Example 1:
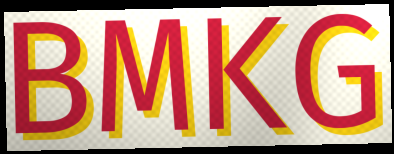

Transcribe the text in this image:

BMKG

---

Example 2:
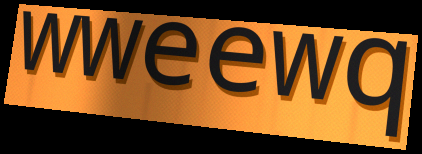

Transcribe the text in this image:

wweewq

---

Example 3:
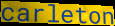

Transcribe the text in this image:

carleton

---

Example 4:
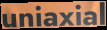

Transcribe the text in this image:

uniaxial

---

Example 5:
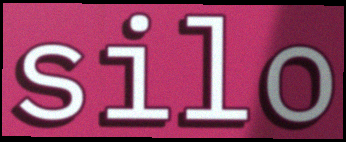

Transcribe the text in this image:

silo